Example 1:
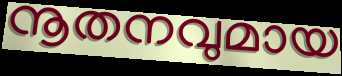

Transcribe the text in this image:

നൂതനവുമായ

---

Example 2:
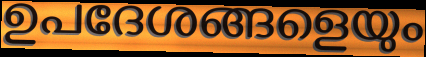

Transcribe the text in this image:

ഉപദേശങ്ങളെയും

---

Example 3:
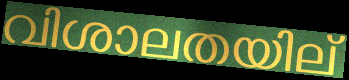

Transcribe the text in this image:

വിശാലതയില്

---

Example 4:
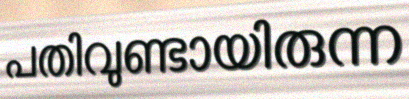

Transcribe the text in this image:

പതിവുണ്ടായിരുന്ന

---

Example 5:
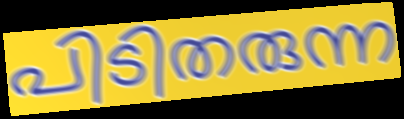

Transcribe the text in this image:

പിടിതരുന്ന